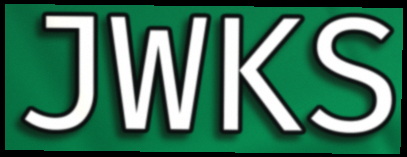
JWKS